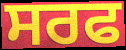
ਸਰਫ